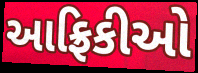
આફ્રિકીઓ